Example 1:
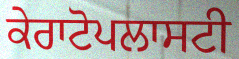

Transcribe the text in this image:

ਕੇਰਾਟੋਪਲਾਸਟੀ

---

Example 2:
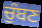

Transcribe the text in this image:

ਚੁੰਬਣ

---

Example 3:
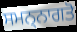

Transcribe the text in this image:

ਸਮਨ੍ਨਾਗਤੋ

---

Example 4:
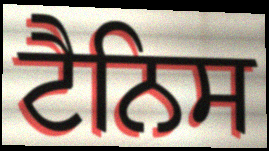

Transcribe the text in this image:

ਟੈਨਿਸ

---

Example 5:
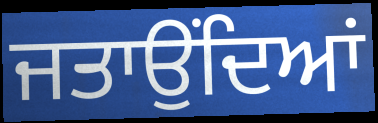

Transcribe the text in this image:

ਜਤਾਉੰਦਿਆਂ